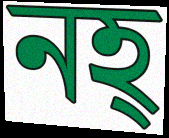
নহ্